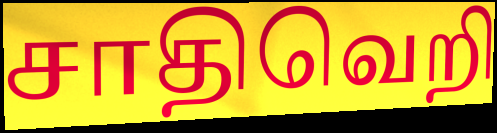
சாதிவெறி